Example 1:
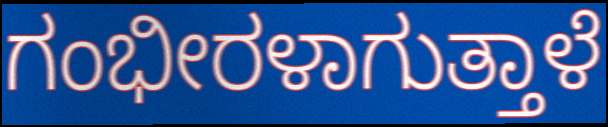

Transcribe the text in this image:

ಗಂಭೀರಳಾಗುತ್ತಾಳೆ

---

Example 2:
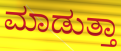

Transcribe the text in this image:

ಮಾಡುತ್ತಾ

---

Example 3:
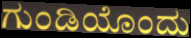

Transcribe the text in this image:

ಗುಂಡಿಯೊಂದು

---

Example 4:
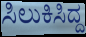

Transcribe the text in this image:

ಸಿಲುಕಿಸಿದ್ದ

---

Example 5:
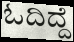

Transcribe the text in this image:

ಓದಿದ್ದೆ